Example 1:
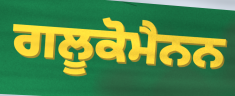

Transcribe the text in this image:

ਗਲੂਕੋਮੈਨਨ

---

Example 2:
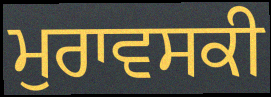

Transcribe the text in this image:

ਮੁਰਾਵਸਕੀ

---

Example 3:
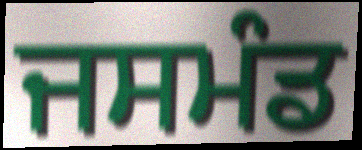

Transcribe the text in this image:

ਜਸਮੰਡ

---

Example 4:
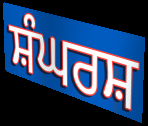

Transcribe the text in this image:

ਸ਼ੰਘਰਸ਼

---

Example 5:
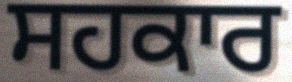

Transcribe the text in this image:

ਸਹਕਾਰ